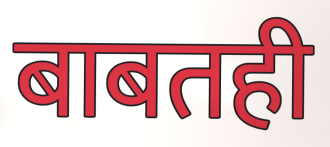
बाबतही